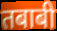
तबाबी